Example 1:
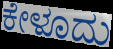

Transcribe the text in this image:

ಕೇಳೂದು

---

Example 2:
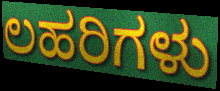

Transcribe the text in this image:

ಲಹರಿಗಳು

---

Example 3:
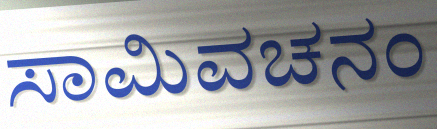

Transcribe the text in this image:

ಸಾಮಿವಚನಂ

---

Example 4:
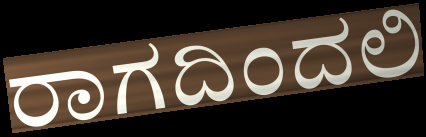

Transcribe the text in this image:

ರಾಗದಿಂದಲಿ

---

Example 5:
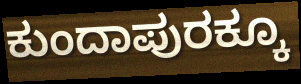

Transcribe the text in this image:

ಕುಂದಾಪುರಕ್ಕೂ